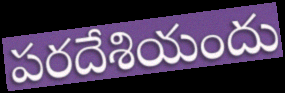
పరదేశియందు